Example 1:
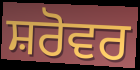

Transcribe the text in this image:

ਸ਼ਰੋਵਰ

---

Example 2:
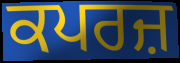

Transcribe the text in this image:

ਕਪਰਜ਼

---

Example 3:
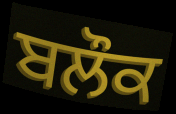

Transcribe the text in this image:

ਬਲੌਕ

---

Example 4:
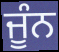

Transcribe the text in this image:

ਜੂੰਨ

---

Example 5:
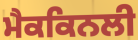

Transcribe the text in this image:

ਮੈਕਕਿਨਲੀ